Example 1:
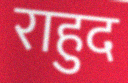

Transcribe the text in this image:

राहुद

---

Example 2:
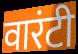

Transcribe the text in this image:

वारंटी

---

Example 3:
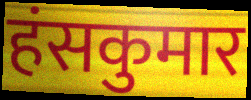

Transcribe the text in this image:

हंसकुमार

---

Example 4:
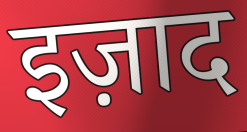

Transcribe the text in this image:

इज़ाद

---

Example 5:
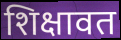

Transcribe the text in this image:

शिक्षावत